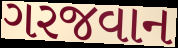
ગરજવાન